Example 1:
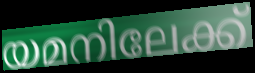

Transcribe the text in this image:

യമനിലേക്ക്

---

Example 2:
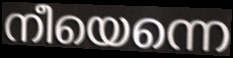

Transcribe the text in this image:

നീയെന്നെ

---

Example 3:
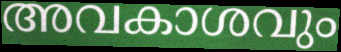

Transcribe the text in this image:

അവകാശവും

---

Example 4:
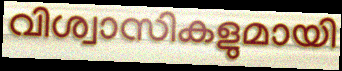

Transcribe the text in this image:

വിശ്വാസികളുമായി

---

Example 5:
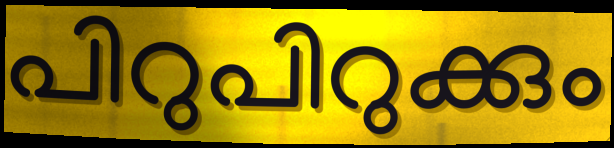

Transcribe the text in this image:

പിറുപിറുക്കും